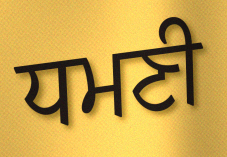
ਧਮਣੀ